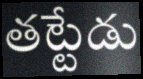
తట్టేడు